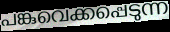
പങ്കുവെക്കപ്പെടുന്ന